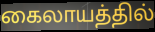
கைலாயத்தில்